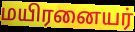
மயிரனையர்